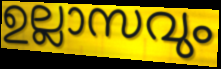
ഉല്ലാസവും